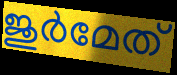
ജുർമേത്